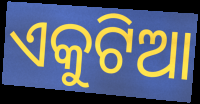
ଏକୁଟିଆ